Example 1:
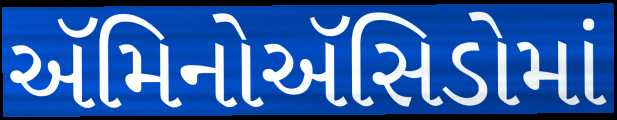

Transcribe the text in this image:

ઍમિનોઍસિડોમાં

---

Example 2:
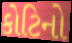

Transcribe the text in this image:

કોટિનો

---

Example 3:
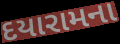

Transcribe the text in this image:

દયારામના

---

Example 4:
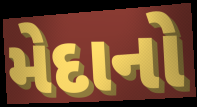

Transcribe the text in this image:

મેદાનો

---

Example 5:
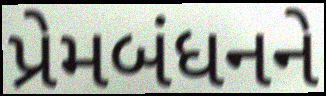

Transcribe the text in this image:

પ્રેમબંધનને